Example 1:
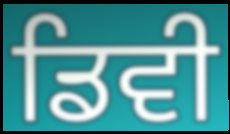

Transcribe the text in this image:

ਡਿਵੀ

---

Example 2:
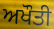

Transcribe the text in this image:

ਅਖੌਤੀ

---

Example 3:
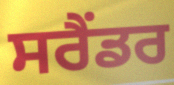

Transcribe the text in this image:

ਸਰੈਂਡਰ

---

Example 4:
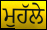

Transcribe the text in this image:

ਮੁਹੱਲੇ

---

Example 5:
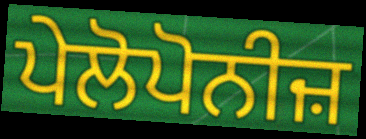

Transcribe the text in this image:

ਪੇਲੋਪੋਨੀਜ਼